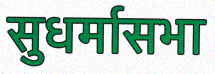
सुधर्मासभा